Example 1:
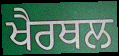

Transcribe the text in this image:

ਖੈਰਥਲ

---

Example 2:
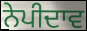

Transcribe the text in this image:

ਨੇਪੀਦਾਵ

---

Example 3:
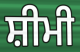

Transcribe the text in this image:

ਸ਼ੀਮੀ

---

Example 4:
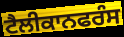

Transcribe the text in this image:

ਟੈਲੀਕਾਨਫਰੰਸ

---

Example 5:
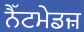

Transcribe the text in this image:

ਨੈੱਟਮੇਡਜ਼